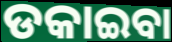
ଡକାଇବା